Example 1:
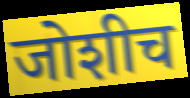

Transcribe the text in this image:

जोशीच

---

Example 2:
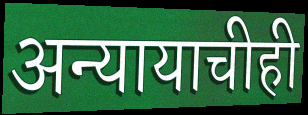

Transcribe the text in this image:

अन्यायाचीही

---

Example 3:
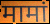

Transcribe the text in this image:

मामां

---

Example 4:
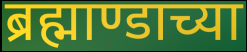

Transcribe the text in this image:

ब्रह्माण्डाच्या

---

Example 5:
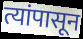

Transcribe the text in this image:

त्यांपासून